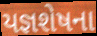
યજ્ઞશેષના